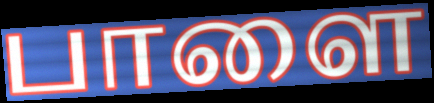
பாளை